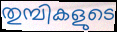
തുമ്പികളുടെ